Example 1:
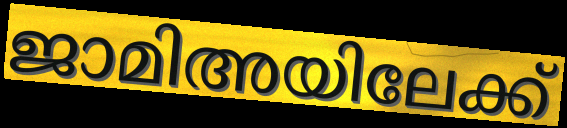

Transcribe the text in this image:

ജാമിഅയിലേക്ക്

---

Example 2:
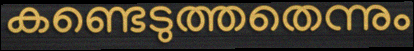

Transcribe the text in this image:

കണ്ടെടുത്തതെന്നും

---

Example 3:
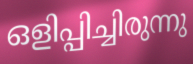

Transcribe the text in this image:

ഒളിപ്പിച്ചിരുന്നു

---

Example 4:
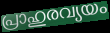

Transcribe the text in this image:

പ്രാഹുരവ്യയം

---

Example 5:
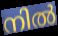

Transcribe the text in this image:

നിൽ